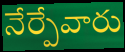
నేర్పేవారు